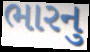
ભારનુ